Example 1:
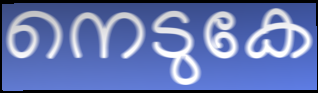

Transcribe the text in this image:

നെടുകേ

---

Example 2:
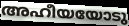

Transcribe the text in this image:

അഹീയയോടു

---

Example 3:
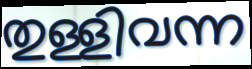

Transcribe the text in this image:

തുള്ളിവന്ന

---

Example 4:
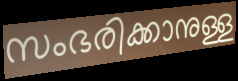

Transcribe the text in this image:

സംഭരിക്കാനുള്ള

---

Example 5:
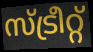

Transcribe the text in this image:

സ്ട്രീറ്റ്